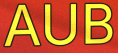
AUB